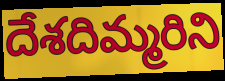
దేశదిమ్మరిని